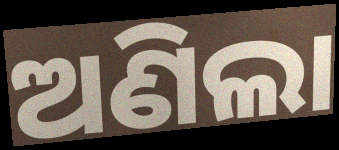
ଅଣିଲା